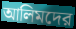
আলিমদের